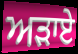
ਅੜਾਏ